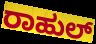
ರಾಹುಲ್